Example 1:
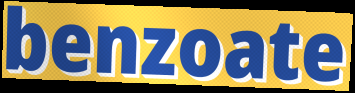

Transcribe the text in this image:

benzoate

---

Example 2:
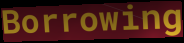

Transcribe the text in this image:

Borrowing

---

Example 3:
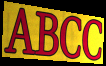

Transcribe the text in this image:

ABCC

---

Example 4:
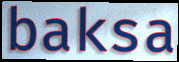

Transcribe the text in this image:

baksa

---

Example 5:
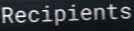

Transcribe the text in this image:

Recipients